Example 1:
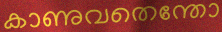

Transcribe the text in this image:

കാണുവതെന്തോ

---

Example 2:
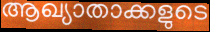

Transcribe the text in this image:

ആഖ്യാതാക്കളുടെ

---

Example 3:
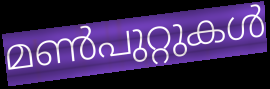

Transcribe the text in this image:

മൺപുറ്റുകൾ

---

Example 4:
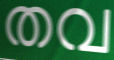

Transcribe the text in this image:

തവ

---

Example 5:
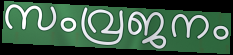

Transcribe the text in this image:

സംവ്രജനം